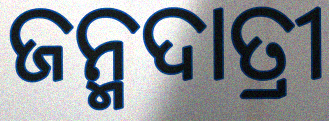
ଜନ୍ମଦାତ୍ରୀ